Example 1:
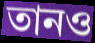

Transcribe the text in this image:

তানও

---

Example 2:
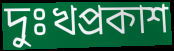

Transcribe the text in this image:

দুঃখপ্রকাশ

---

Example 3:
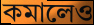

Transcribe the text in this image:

কমালেও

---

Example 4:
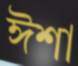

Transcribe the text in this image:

ঈশা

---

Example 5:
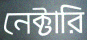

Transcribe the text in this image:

নেক্টারি